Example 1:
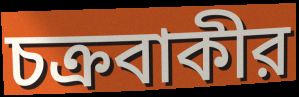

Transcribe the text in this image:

চক্রবাকীর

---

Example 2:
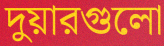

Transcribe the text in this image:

দুয়ারগুলো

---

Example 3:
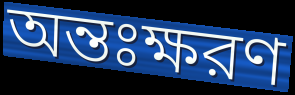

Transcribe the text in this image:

অন্তঃক্ষরণ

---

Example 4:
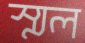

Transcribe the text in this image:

স্মল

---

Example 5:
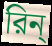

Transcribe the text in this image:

রিন্